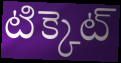
టిక్కెట్